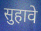
सुहावे